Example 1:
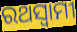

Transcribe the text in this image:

ରଥସ୍ୱାମୀ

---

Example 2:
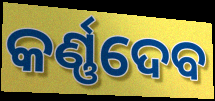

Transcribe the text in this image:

କର୍ଣ୍ଣଦେବ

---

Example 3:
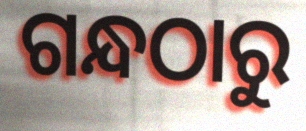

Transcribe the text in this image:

ଗନ୍ଧଠାରୁ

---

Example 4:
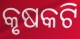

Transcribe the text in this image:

କୃଷକଟି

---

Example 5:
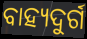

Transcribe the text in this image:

ବାହ୍ୟଦୁର୍ଗ